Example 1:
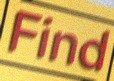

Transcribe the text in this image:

Find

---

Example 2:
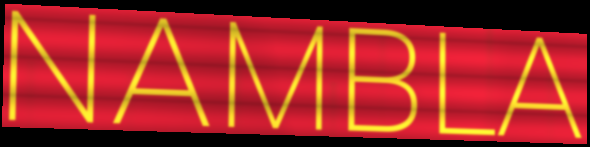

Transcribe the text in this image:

NAMBLA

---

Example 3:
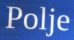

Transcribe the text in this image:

Polje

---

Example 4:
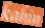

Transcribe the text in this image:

kahin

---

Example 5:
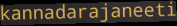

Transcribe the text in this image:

kannadarajaneeti